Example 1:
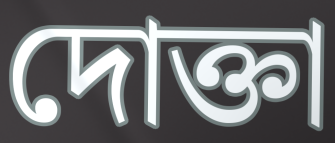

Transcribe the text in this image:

দোক্তা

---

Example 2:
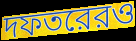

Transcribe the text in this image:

দফতরেরও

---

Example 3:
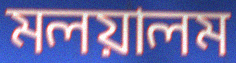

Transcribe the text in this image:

মলয়ালম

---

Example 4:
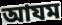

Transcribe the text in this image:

আযম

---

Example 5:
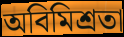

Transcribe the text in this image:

অবিমিশ্রতা